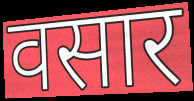
वसार